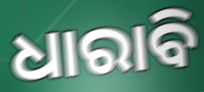
ଧାରାବି